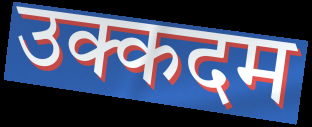
उक्कदम